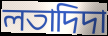
লতাদিদা